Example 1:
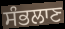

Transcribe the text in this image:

ਸੰਭਲਾਣ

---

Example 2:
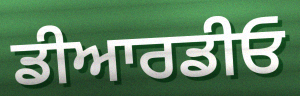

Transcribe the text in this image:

ਡੀਆਰਡੀਓ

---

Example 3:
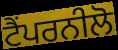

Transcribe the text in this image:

ਟੈਂਪਰਨੀਲੋ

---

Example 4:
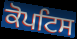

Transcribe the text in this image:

ਕੋਪਟਿਸ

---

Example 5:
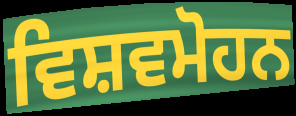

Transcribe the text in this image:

ਵਿਸ਼ਵਮੋਹਨ